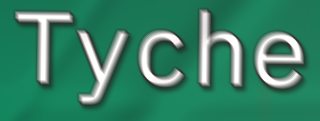
Tyche